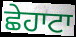
ਛੇਹਾਟਾ